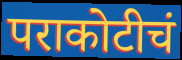
पराकोटीचं